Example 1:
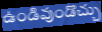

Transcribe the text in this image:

ఉండివుండొచ్చు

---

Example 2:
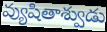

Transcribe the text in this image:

వ్యుషితాశ్వుడు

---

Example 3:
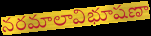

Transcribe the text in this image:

నరమాలావిభూషణా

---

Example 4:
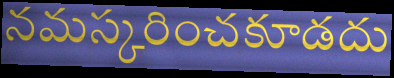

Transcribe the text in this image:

నమస్కరించకూడదు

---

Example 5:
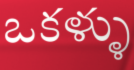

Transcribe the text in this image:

ఒకళ్ళు